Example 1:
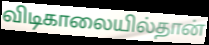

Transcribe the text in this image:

விடிகாலையில்தான்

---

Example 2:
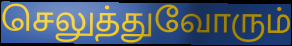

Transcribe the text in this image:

செலுத்துவோரும்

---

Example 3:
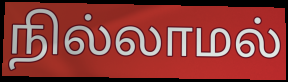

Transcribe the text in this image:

நில்லாமல்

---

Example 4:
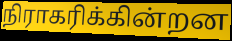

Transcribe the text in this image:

நிராகரிக்கின்றன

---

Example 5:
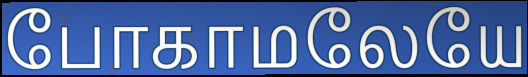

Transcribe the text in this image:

போகாமலேயே